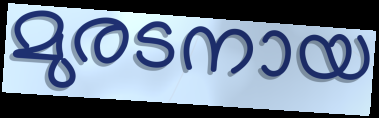
മുരടനായ